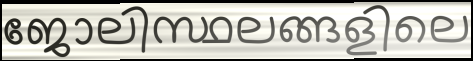
ജോലിസ്ഥലങ്ങളിലെ